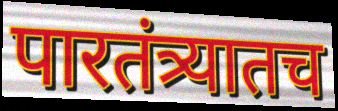
पारतंत्र्यातच